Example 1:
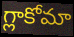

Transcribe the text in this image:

గ్లాకోమా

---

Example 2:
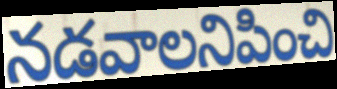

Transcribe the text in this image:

నడవాలనిపించి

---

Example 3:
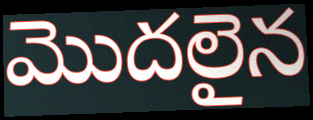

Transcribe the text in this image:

మొదలైన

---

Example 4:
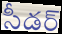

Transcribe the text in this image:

సీడర్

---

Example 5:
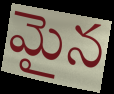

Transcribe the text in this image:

మైన